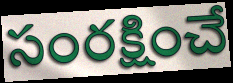
సంరక్షించే